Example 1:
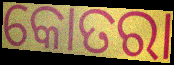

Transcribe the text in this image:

କୋତରା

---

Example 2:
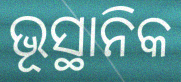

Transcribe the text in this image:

ଭୂସ୍ଥାନିକ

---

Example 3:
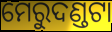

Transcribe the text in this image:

ମେରୁଦଣ୍ଡଟା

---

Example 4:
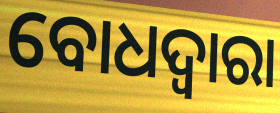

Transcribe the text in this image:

ବୋଧଦ୍ଵାରା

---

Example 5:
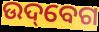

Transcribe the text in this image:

ଉଦ୍‌ବେଗ